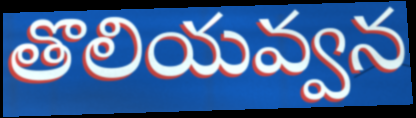
తొలియవ్వన